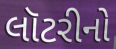
લૉટરીનો